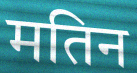
मतिन